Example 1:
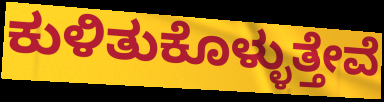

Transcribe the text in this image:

ಕುಳಿತುಕೊಳ್ಳುತ್ತೇವೆ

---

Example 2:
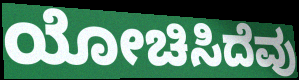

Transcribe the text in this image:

ಯೋಚಿಸಿದೆವು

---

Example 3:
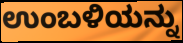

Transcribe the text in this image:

ಉಂಬಳಿಯನ್ನು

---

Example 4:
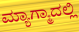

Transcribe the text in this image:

ಮ್ಯಾಗ್ಮಾದಲ್ಲಿ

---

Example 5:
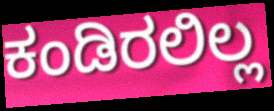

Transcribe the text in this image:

ಕಂಡಿರಲಿಲ್ಲ